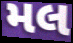
મલ